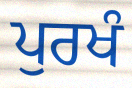
ਪੁਰਖੰ